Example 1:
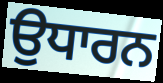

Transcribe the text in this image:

ਉਧਾਰਨ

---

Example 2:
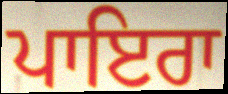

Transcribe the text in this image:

ਪਾਇਰਾ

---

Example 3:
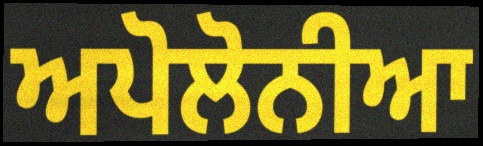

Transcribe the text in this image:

ਅਪੋਲੋਨੀਆ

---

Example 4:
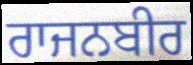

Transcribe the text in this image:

ਰਾਜਨਬੀਰ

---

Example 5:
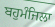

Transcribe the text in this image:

ਬਹੁਮੰਜਿਲਾ